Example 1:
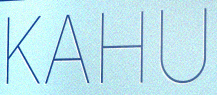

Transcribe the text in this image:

KAHU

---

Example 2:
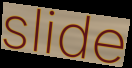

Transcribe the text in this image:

slide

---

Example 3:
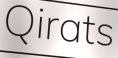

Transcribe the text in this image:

Qirats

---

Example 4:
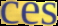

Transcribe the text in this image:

ces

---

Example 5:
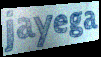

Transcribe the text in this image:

jayega